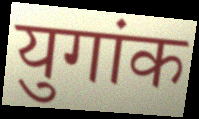
युगांक